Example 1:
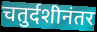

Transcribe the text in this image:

चतुर्दशीनंतर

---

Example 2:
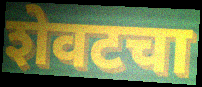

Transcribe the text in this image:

शेवटचा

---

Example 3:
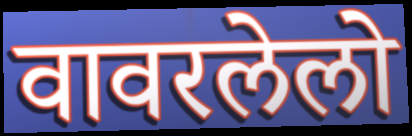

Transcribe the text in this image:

वावरलेलो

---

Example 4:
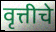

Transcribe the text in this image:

वृत्तीचे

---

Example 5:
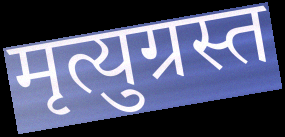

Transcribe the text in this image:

मृत्युग्रस्त